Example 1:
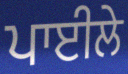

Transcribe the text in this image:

ਪਾਈਲੇ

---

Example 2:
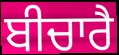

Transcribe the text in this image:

ਬੀਚਾਰੈ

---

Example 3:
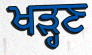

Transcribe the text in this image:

ਖੜ੍ਹਣ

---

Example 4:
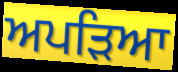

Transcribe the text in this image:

ਅਪੜਿਆ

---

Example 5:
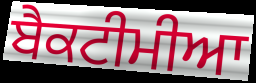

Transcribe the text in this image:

ਬੈਕਟੀਮੀਆ